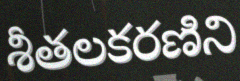
శీతలకరణిని